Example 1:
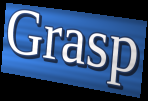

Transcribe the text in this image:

Grasp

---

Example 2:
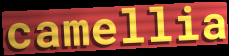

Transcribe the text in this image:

camellia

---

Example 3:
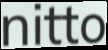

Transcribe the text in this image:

nitto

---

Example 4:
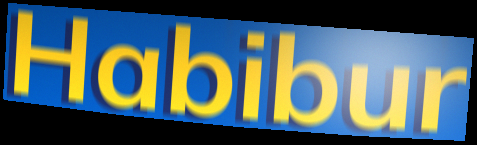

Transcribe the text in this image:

Habibur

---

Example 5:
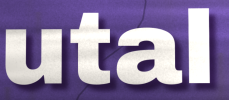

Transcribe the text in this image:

utal